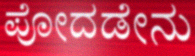
ಪೋದಡೇನು